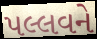
પલ્લવને